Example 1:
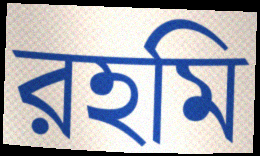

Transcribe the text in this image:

রহমি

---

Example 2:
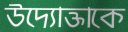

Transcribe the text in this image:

উদ্যোক্তাকে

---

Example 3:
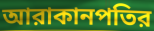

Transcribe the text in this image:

আরাকানপতির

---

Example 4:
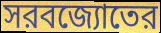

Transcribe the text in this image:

সরবজ্যোতের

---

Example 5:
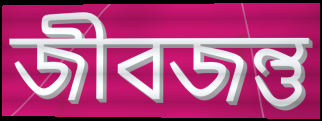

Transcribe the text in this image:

জীবজন্তু